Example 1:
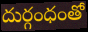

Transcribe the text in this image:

దుర్గంధంతో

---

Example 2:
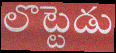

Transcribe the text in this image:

లొట్టెడు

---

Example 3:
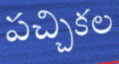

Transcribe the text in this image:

పచ్చికల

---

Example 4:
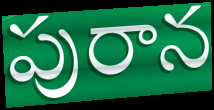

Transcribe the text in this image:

పురాన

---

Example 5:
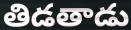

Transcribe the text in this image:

తిడతాడు